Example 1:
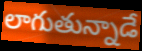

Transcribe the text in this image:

లాగుతున్నాడే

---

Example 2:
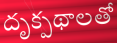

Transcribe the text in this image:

దృక్పథాలతో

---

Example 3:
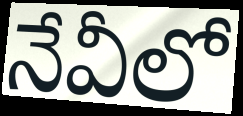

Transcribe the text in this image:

నేవీలో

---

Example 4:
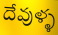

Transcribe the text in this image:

దేవుళ్ళ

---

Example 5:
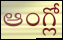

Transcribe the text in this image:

ఆంగ్లో